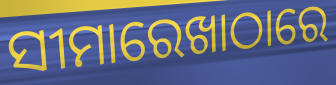
ସୀମାରେଖାଠାରେ